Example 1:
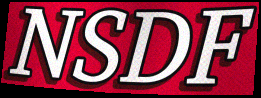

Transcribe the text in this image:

NSDF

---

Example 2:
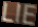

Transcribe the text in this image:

LIE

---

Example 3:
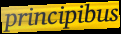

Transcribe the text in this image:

principibus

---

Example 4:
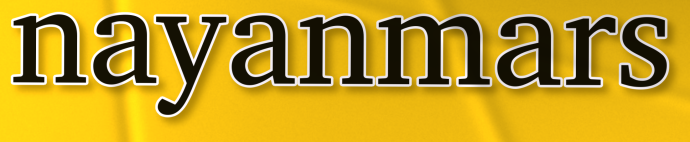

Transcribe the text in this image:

nayanmars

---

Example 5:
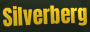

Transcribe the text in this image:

Silverberg